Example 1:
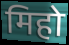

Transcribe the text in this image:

मिहो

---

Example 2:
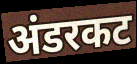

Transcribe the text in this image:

अंडरकट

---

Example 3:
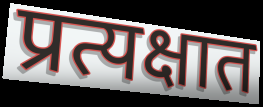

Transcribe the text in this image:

प्रत्यक्षात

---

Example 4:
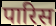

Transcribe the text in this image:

पारिस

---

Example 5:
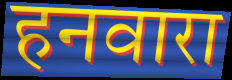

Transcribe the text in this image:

हनवारा